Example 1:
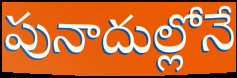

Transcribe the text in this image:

పునాదుల్లోనే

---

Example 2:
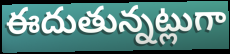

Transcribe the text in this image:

ఈదుతున్నట్లుగా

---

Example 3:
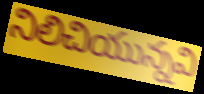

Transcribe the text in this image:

నిలిచియున్నవి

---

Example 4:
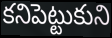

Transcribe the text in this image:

కనిపెట్టుకుని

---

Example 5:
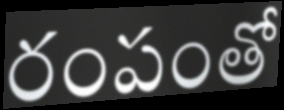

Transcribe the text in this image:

రంపంతో